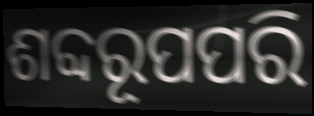
ଶବ୍ଦରୂପପରି